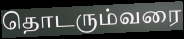
தொடரும்வரை